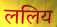
ललिय